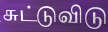
சுட்டுவிடு